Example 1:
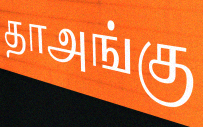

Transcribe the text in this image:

தாஅங்கு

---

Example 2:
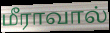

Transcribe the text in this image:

மீராவால்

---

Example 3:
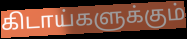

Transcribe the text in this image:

கிடாய்களுக்கும்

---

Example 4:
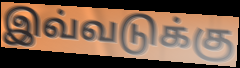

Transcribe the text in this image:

இவ்வடுக்கு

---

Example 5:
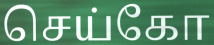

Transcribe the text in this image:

செய்கோ